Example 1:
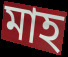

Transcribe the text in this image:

মাহ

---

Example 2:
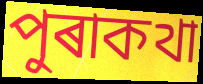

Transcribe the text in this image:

পুৰাকথা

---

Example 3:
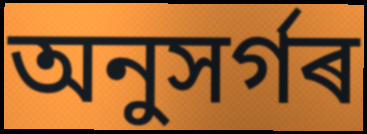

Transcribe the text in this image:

অনুসৰ্গৰ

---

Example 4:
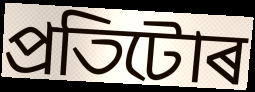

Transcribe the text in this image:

প্ৰতিটোৰ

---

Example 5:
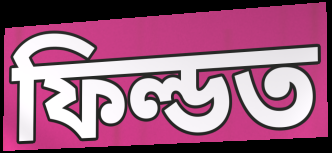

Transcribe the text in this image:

ফিল্ডত